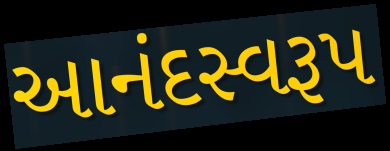
આનંદસ્વરૂપ